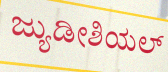
ಜ್ಯುಡೀಶಿಯಲ್